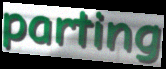
parting